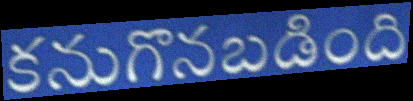
కనుగొనబడింది